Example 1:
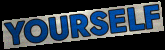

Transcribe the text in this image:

YOURSELF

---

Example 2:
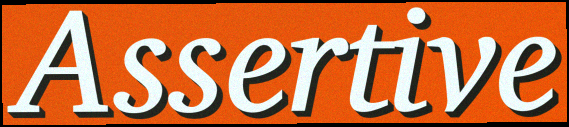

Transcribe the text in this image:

Assertive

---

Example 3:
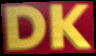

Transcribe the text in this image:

DK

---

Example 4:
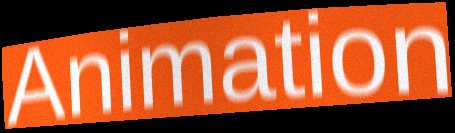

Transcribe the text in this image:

Animation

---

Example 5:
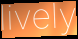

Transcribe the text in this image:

lively